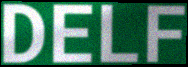
DELF